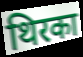
थिरका